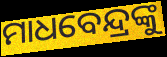
ମାଧବେନ୍ଦ୍ରଙ୍କୁ